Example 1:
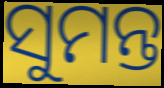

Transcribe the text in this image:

ସୁମନ୍ତ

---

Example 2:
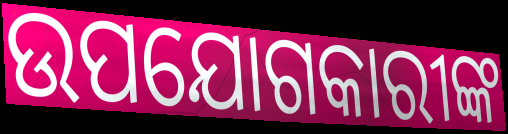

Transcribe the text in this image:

ଉପଯୋଗକାରୀଙ୍କ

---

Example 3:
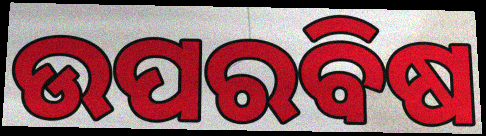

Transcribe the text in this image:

ଉପରବିଷ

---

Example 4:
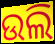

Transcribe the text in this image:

ଉଲି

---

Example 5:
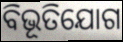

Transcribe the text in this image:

ବିଭୂତିଯୋଗ